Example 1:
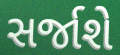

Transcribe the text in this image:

સર્જાશે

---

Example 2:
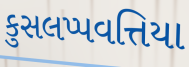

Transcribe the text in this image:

કુસલપ્પવત્તિયા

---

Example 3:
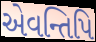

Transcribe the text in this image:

એવન્તિપિ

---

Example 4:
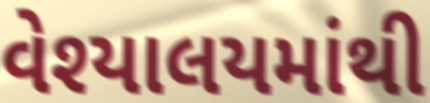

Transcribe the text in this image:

વેશ્યાલયમાંથી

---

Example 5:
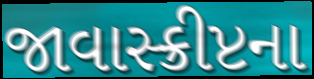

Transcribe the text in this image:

જાવાસ્ક્રીપ્ટના